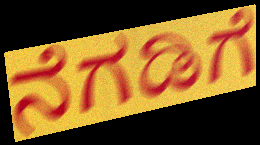
ನೆಗಡಿಗೆ